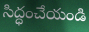
సిద్ధంచేయండి